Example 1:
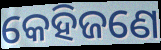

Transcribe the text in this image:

କେହିଜଣେ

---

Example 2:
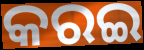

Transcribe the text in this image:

କରଇ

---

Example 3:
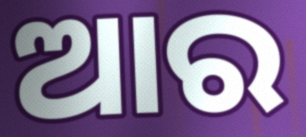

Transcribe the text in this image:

ଆର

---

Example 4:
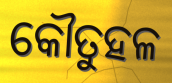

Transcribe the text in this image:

କୌତୁହଳ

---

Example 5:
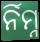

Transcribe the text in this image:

ର୍ନିମ୍ନ